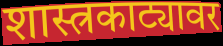
शास्त्रकाट्यावर